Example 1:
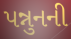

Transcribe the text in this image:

પન્નુનની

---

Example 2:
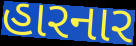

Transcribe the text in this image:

હારનાર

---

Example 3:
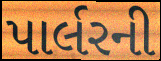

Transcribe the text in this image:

પાર્લરની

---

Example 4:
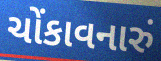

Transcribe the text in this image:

ચોંકાવનારું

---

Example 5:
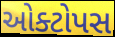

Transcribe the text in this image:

ઓક્ટોપસ